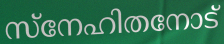
സ്നേഹിതനോട്